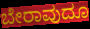
ಬೇರಾವುದೂ